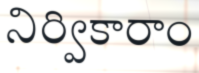
నిర్వికారాం